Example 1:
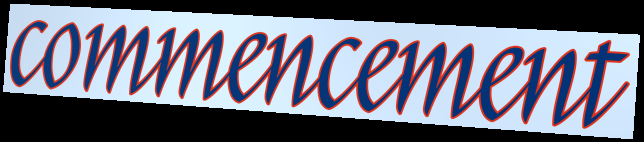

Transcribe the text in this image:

commencement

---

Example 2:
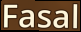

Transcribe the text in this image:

Fasal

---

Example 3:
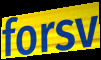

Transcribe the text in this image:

forsv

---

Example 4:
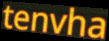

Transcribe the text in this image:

tenvha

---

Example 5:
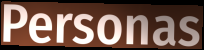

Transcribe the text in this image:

Personas